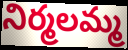
నిర్మలమ్మ